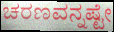
ಚರಣವನ್ನಷ್ಟೇ